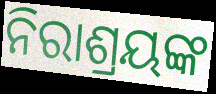
ନିରାଶ୍ରୟଙ୍କ